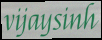
vijaysinh